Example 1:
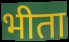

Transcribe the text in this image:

भीता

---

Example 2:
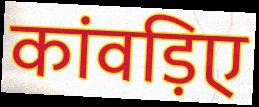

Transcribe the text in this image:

कांवड़िए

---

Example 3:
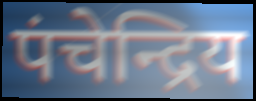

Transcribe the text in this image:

पंचेन्द्रिय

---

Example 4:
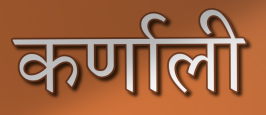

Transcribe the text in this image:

कर्णाली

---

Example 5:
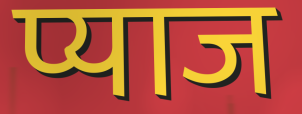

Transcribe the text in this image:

प्याज